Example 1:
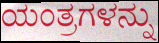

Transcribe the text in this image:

ಯಂತ್ರಗಳನ್ನು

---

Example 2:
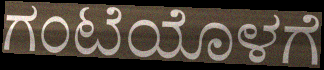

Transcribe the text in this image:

ಗಂಟೆಯೊಳಗೆ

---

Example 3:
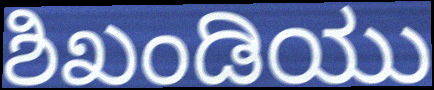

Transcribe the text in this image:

ಶಿಖಂಡಿಯು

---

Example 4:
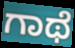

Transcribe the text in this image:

ಗಾಥೆ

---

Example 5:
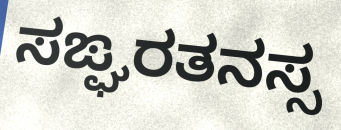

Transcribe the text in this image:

ಸಙ್ಘರತನಸ್ಸ